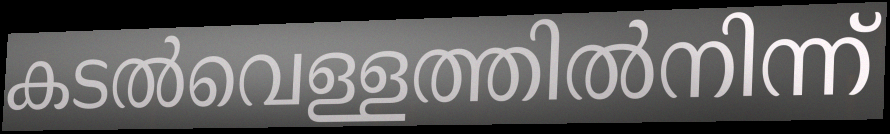
കടൽവെള്ളത്തിൽനിന്ന്